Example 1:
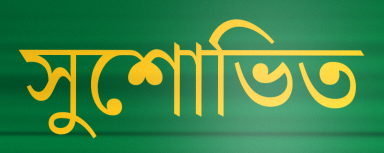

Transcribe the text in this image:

সুশোভিত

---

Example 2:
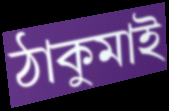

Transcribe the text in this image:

ঠাকুমাই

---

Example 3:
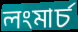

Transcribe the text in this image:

লংমার্চ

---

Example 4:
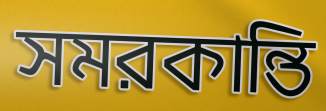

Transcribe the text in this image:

সমরকান্তি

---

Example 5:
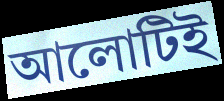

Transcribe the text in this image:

আলোটিই